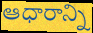
ఆధారాన్ని